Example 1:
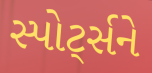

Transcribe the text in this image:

સ્પોર્ટ્સને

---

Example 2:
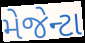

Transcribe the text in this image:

મેજેન્ટા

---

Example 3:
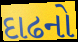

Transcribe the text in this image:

દાઢનો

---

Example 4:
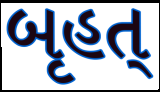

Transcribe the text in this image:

બૃહત્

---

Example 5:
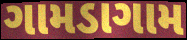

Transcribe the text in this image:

ગામડાગામ